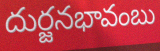
దుర్జనభావంబు